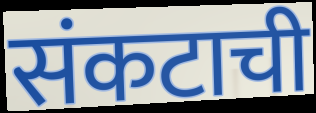
संकटाची